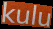
kulu